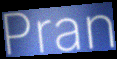
Pran